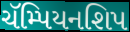
ચૅમ્પિયનશિપ